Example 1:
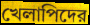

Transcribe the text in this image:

খেলাপিদের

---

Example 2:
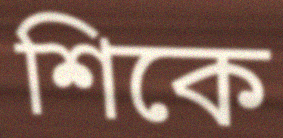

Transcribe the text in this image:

শিকে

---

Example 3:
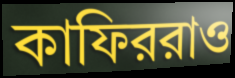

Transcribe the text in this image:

কাফিররাও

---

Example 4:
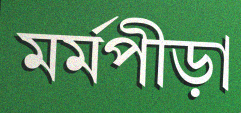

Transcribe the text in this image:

মর্মপীড়া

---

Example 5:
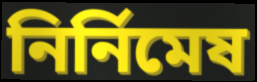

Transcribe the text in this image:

নির্নিমেষ